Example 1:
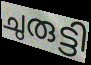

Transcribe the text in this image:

ചുരുട്ടി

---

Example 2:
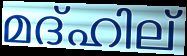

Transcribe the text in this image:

മദ്ഹില്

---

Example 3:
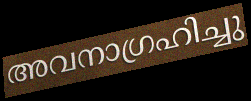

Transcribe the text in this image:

അവനാഗ്രഹിച്ചു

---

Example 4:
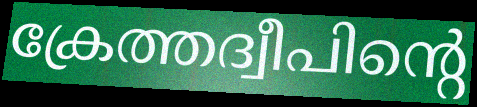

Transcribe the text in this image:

ക്രേത്തദ്വീപിന്റെ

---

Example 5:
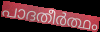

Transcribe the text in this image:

പാദതീർത്ഥം